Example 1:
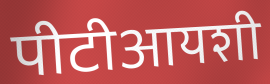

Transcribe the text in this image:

पीटीआयशी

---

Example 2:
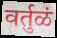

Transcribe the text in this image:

वर्तुळं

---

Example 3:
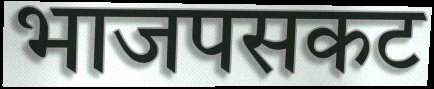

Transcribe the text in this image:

भाजपसकट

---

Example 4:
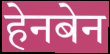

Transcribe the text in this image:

हेनबेन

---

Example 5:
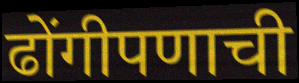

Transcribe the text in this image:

ढोंगीपणाची